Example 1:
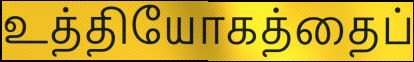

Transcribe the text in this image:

உத்தியோகத்தைப்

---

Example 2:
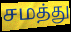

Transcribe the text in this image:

சமத்து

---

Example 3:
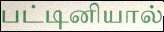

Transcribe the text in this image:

பட்டினியால்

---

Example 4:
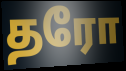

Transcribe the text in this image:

தரோ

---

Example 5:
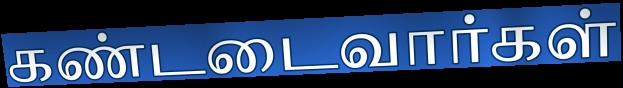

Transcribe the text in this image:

கண்டடைவார்கள்